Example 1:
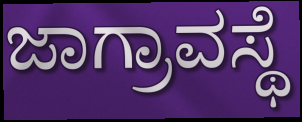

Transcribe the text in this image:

ಜಾಗ್ರಾವಸ್ಥೆ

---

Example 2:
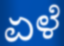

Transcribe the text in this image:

ಏಳೆ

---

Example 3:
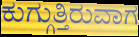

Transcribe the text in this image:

ಕುಗ್ಗುತ್ತಿರುವಾಗ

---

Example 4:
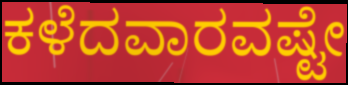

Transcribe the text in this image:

ಕಳೆದವಾರವಷ್ಟೇ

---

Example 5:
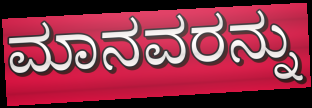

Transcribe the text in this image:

ಮಾನವರನ್ನು